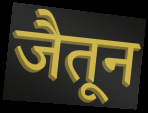
जैतून